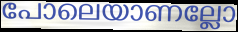
പോലെയാണല്ലോ